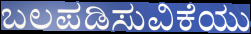
ಬಲಪಡಿಸುವಿಕೆಯು